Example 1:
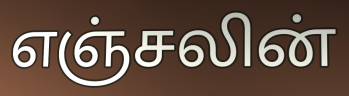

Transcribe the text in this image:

எஞ்சலின்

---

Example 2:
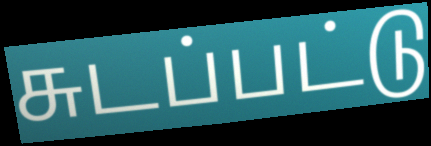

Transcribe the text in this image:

சுடப்பட்டு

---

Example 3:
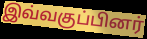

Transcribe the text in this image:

இவ்வகுப்பினர்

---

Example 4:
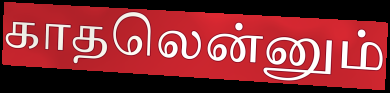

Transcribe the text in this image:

காதலென்னும்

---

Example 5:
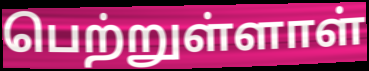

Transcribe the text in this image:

பெற்றுள்ளாள்